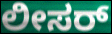
ಲೀಸರ್